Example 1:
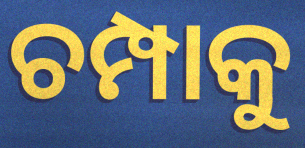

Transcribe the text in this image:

ଚମ୍ପାକୁ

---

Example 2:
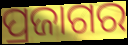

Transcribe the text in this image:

ପ୍ରଜାଗର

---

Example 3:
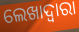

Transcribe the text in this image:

ଲେଖାଦ୍ୱାରା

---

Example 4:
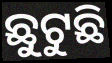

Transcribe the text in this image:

ଛୁଟୁଛି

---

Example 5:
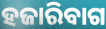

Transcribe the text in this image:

ହଜାରିବାଗ